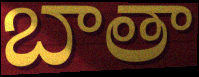
బాతా